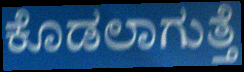
ಕೊಡಲಾಗುತ್ತೆ